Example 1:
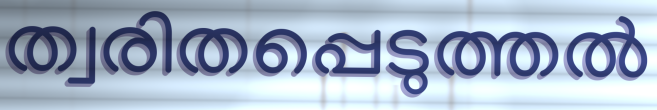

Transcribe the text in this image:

ത്വരിതപ്പെടുത്തൽ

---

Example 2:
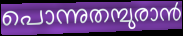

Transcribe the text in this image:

പൊന്നുതമ്പുരാൻ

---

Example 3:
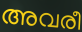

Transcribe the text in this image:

അവരീ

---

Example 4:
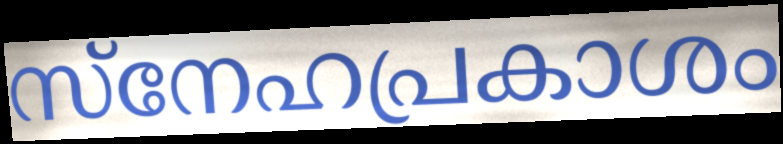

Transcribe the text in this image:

സ്നേഹപ്രകാശം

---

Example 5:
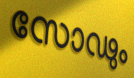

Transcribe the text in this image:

സോഢും